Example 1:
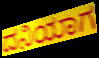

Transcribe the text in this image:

ದನಿಯಾಗ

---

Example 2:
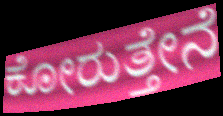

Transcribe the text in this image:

ಕೋರುತ್ತೇನೆ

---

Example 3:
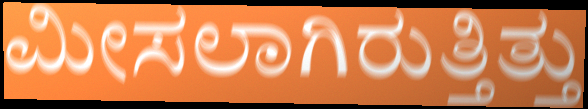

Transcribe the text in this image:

ಮೀಸಲಾಗಿರುತ್ತಿತ್ತು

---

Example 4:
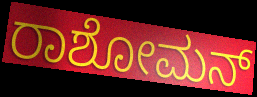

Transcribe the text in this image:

ರಾಶೋಮನ್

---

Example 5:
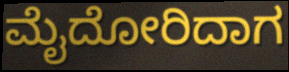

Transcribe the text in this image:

ಮೈದೋರಿದಾಗ